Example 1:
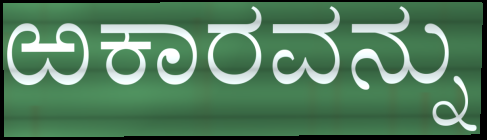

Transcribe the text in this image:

ಱಕಾರವನ್ನು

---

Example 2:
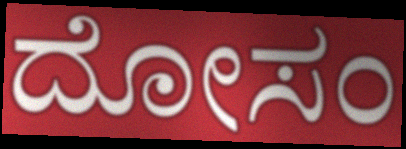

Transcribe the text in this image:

ದೋಸಂ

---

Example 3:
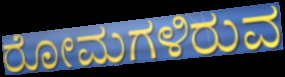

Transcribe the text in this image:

ರೋಮಗಳಿರುವ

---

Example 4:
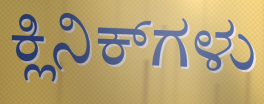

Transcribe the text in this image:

ಕ್ಲಿನಿಕ್‌ಗಳು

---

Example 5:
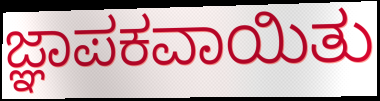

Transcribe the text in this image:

ಜ್ಞಾಪಕವಾಯಿತು